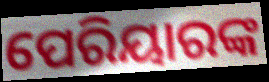
ପେରିୟାରଙ୍କ